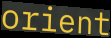
orient